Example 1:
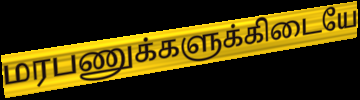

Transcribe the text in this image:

மரபணுக்களுக்கிடையே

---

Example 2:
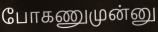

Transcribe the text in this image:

போகணுமுன்னு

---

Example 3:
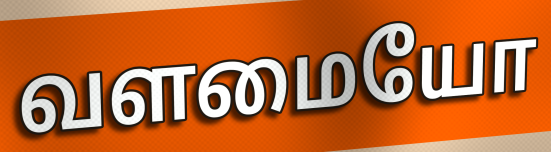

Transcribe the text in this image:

வளமையோ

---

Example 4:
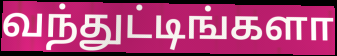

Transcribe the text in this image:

வந்துட்டிங்களா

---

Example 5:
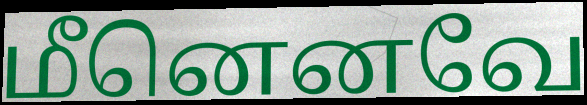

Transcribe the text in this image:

மீனெனவே